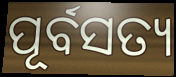
ପୂର୍ବସତ୍ୟ